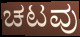
ಚಟವು